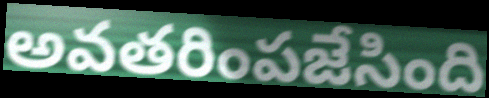
అవతరింపజేసింది